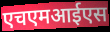
एचएमआईएस